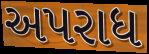
અપરાધ